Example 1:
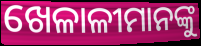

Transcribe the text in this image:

ଖେଳାଳୀମାନଙ୍କୁ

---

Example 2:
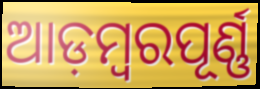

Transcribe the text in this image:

ଆଡ଼ମ୍ବରପୂର୍ଣ୍ଣ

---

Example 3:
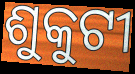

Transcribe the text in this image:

ଶୁକୁଟୀ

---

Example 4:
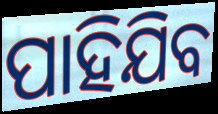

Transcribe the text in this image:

ପାହିଯିବ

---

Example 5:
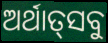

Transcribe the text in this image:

ଅର୍ଥାତ୍‌ସବୁ